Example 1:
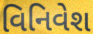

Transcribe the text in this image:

વિનિવેશ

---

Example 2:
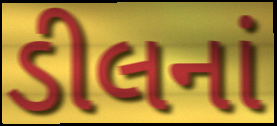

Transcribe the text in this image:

ડીલનાં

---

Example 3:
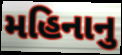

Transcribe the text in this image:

મહિનાનુ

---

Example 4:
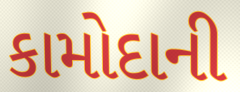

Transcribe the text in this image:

કામોદાની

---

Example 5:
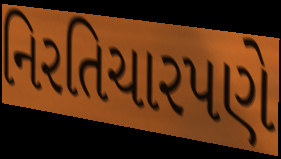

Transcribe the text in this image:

નિરતિચારપણે